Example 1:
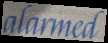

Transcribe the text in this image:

alarmed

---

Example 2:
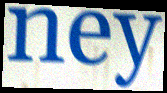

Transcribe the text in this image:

ney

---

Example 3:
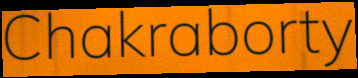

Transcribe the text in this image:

Chakraborty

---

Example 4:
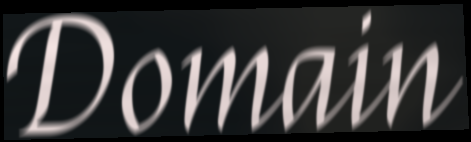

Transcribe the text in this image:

Domain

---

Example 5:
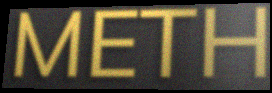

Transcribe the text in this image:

METH